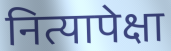
नित्यापेक्षा